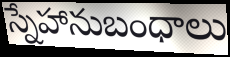
స్నేహానుబంధాలు